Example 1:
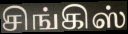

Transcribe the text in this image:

சிங்கிஸ்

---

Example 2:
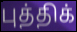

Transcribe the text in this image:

புத்திக்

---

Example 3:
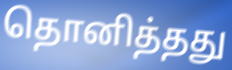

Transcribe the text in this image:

தொனித்தது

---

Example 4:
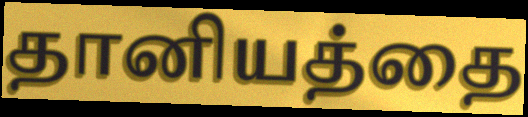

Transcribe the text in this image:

தானியத்தை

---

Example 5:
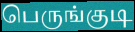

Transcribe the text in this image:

பெருங்குடி